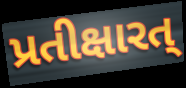
પ્રતીક્ષારત્